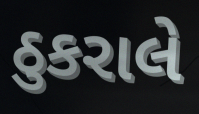
ઠુકરાલે